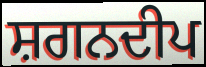
ਸ਼ਗਨਦੀਪ